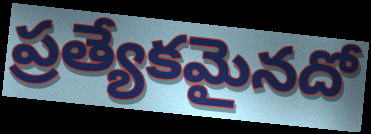
ప్రత్యేకమైనదో